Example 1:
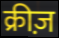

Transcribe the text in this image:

क्रीज़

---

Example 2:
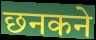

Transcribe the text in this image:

छनकने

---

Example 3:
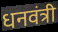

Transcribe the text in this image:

धनवंत्री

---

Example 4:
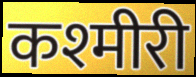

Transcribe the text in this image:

कश्‍मीरी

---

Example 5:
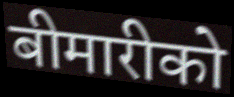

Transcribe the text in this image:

बीमारीको